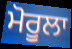
ਮੋਰੂਲਾ